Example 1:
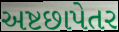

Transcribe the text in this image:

અષ્ટછાપેતર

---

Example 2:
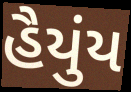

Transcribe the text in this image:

હૈયુંય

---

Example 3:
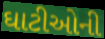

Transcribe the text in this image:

ઘાટીઓની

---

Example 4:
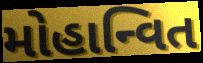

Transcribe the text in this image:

મોહાન્વિત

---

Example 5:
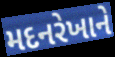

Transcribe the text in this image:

મદનરેખાને